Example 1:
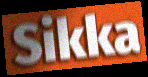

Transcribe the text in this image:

Sikka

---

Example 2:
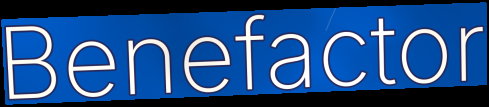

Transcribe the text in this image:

Benefactor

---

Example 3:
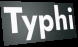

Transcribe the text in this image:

Typhi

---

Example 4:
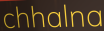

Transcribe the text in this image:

chhalna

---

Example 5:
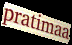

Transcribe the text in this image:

pratimaa